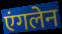
एंगलेन